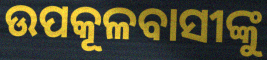
ଉପକୂଳବାସୀଙ୍କୁ